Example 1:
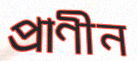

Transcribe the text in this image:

প্রাণীন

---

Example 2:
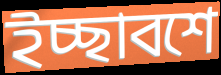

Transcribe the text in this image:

ইচ্ছাবশে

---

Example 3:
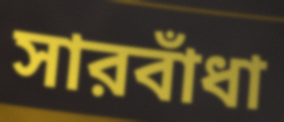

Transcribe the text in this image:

সারবাঁধা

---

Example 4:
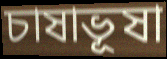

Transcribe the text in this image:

চাষাভূষা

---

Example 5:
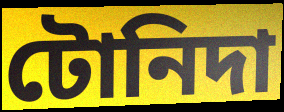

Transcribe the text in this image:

টোনিদা